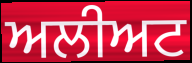
ਅਲੀਅਟ